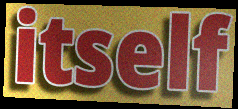
itself